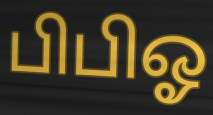
பிபிஓ